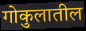
गोकुलातील